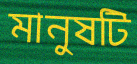
মানুষটি